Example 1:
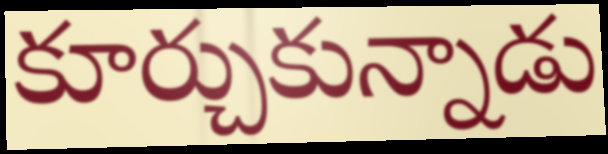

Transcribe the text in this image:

కూర్చుకున్నాడు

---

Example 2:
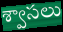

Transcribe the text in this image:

శ్వాసలు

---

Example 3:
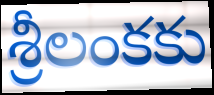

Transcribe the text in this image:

శ్రీలంకకు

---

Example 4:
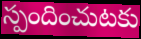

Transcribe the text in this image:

స్పందించుటకు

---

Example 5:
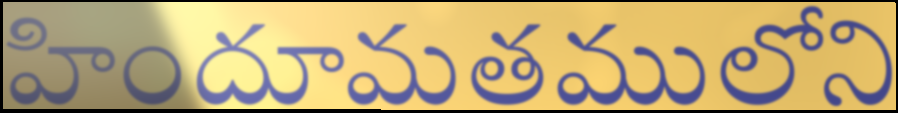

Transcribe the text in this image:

హిందూమతములోని